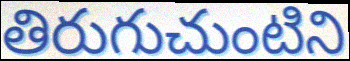
తిరుగుచుంటిని